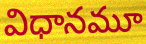
విధానమూ